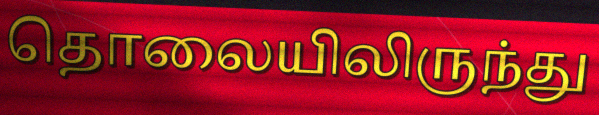
தொலையிலிருந்து